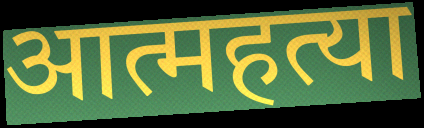
आत्‍महत्‍या